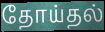
தோய்தல்